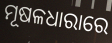
ମୂଷଳଧାରାରେ